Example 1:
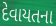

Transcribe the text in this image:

દેવાયતના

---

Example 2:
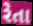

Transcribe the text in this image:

રેતા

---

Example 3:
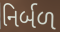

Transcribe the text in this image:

નિર્બળ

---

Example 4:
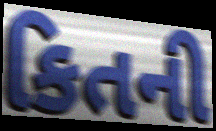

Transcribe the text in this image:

કિતની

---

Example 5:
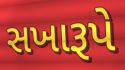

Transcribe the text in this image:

સખારૂપે